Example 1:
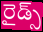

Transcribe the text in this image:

రైడ్స్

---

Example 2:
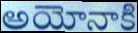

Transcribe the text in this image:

అయోనాకి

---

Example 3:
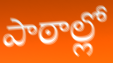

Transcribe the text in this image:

పాఠాల్లో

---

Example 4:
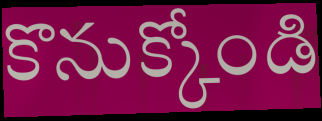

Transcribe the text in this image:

కొనుక్కోండి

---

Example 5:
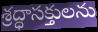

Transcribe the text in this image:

శ్రద్ధాసక్తులను